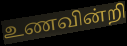
உணவின்றி